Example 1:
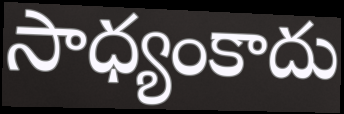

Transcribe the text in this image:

సాధ్యంకాదు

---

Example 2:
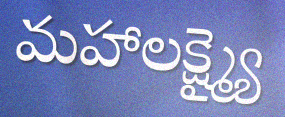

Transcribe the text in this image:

మహాలక్ష్మ్యై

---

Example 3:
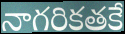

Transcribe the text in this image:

నాగరికతకే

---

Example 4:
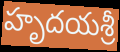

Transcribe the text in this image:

హృదయశ్రీ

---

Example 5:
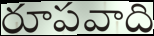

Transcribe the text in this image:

రూపవాది